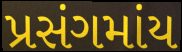
પ્રસંગમાંય